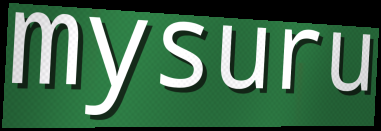
mysuru